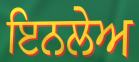
ਇਨਲੇਅ